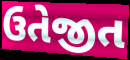
ઉતેજીત